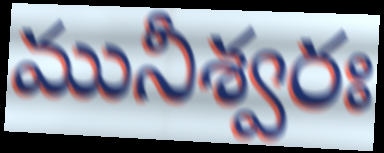
మునీశ్వరః